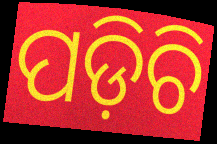
ପଡ଼ିଚି